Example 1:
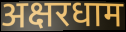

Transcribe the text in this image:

अक्षरधाम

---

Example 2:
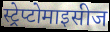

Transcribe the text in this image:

स्ट्रेप्टोमाइसीज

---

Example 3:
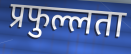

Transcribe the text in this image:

प्रफुल्लता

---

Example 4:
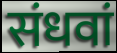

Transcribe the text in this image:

संधवां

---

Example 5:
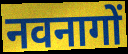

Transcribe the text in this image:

नवनागों